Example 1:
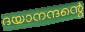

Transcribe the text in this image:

ദയാനന്ദന്റെ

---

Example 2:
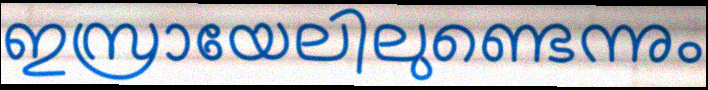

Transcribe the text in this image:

ഇസ്രായേലിലുണ്ടെന്നും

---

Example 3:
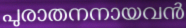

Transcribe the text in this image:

പുരാതനനായവൻ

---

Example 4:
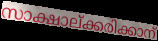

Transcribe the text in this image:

സാക്ഷാല്ക്കരിക്കാന്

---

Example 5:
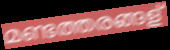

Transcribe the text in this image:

മണ്ടത്തരങ്ങള്